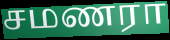
சமணரா